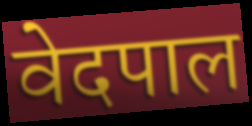
वेदपाल